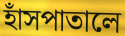
হাঁসপাতালে